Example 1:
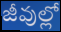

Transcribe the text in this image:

జీవుల్లో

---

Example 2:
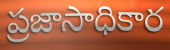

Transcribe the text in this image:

ప్రజాసాధికార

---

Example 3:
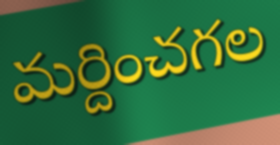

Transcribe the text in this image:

మర్దించగల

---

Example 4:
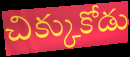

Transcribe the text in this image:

చిక్కుకోడు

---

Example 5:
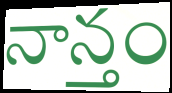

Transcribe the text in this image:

నాన్తం